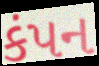
કંપન